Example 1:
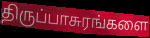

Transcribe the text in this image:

திருப்பாசுரங்களை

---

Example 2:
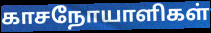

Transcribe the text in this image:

காசநோயாளிகள்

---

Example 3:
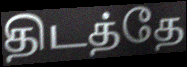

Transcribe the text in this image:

திடத்தே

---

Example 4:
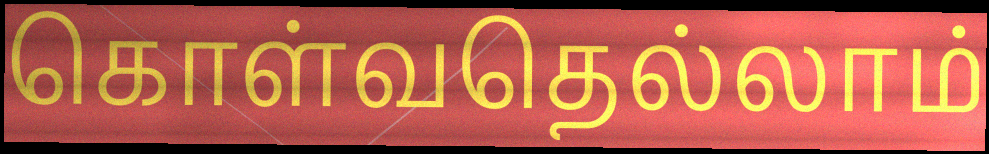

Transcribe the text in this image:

கொள்வதெல்லாம்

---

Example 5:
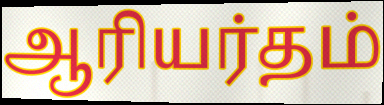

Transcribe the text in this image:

ஆரியர்தம்